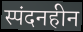
स्पंदनहीन